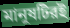
মানুষটিরই